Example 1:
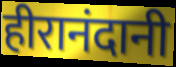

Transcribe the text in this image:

हीरानंदानी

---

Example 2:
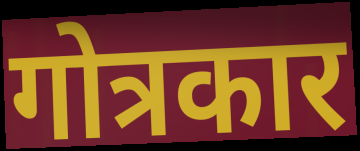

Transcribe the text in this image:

गोत्रकार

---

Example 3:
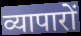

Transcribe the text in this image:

व्यापारों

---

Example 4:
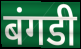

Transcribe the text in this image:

बंगडी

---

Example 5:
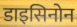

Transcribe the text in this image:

डाइसिनोन